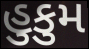
હુકુમ